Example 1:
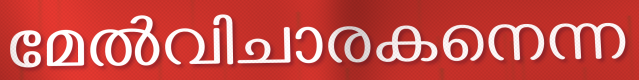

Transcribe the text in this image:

മേൽവിചാരകനെന്ന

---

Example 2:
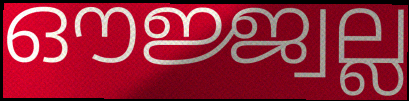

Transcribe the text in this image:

ഔജ്ജ്വല്ല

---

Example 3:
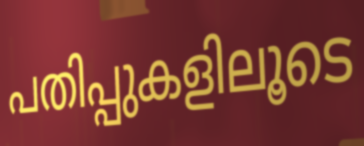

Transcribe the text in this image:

പതിപ്പുകളിലൂടെ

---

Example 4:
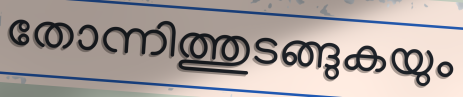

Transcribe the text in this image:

തോന്നിത്തുടങ്ങുകയും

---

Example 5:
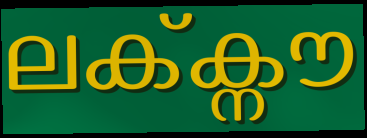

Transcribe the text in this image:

ലക്ക്നൗ